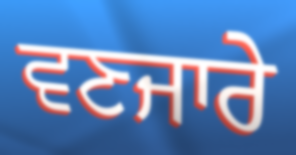
ਵਣਜਾਰੇ